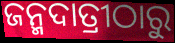
ଜନ୍ମଦାତ୍ରୀଠାରୁ